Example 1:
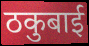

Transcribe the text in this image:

ठकुबाई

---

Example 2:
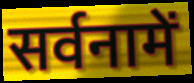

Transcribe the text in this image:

सर्वनामें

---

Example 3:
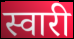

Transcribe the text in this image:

स्वारी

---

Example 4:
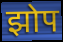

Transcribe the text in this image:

झोप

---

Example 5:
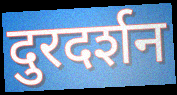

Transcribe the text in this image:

दुरदर्शन